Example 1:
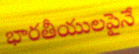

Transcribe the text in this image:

భారతీయులపైనే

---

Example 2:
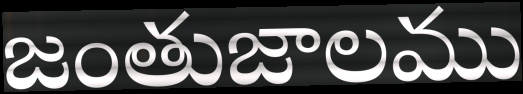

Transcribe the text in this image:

జంతుజాలము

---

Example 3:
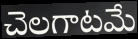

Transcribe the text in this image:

చెలగాటమే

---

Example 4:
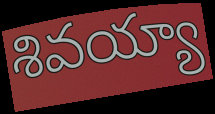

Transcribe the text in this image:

శివయ్యా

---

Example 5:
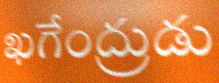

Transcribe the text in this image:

ఖగేంద్రుడు